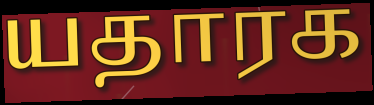
யதாரக